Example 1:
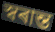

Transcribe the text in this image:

স্বৰান্ত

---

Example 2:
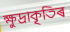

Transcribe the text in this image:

ক্ষুদ্ৰাকৃতিৰ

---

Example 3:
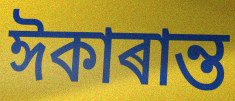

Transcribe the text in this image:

ঈকাৰান্ত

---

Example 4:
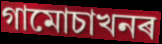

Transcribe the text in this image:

গামোচাখনৰ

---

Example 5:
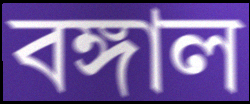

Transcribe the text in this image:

বঙ্গাল